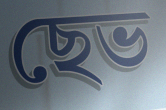
ছেভ